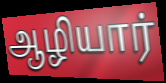
ஆழியார்